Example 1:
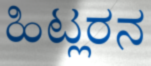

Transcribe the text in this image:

ಹಿಟ್ಲರನ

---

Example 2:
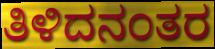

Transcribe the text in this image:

ತಿಳಿದನಂತರ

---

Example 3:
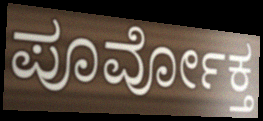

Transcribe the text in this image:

ಪೂರ್ವೋಕ್ತ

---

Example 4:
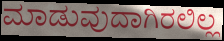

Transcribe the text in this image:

ಮಾಡುವುದಾಗಿರಲಿಲ್ಲ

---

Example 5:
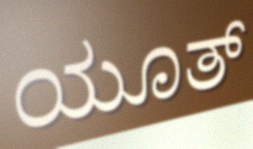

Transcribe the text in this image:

ಯೂತ್